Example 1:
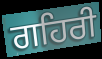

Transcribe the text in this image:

ਗਹਿਰੀ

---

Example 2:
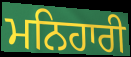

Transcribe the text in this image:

ਮਨਿਹਾਰੀ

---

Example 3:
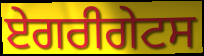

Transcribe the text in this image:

ਏਗਰੀਗੇਟਸ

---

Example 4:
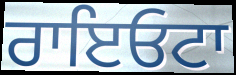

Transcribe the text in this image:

ਰਾਇਓਟਾ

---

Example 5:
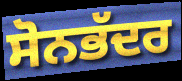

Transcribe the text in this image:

ਸੋਨਭੱਦਰ